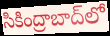
సికింద్రాబాద్‌లో